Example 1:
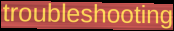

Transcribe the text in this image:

troubleshooting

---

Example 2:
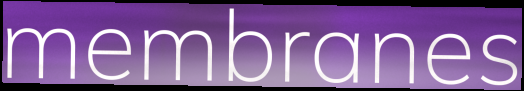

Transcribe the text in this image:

membranes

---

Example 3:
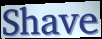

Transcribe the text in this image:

Shave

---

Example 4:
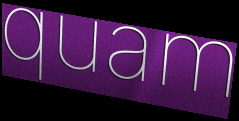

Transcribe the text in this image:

quam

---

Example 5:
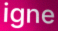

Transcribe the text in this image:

igne